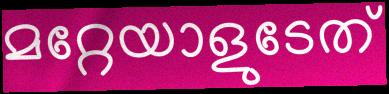
മറ്റേയാളുടേത്